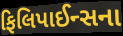
ફિલિપાઈન્સના